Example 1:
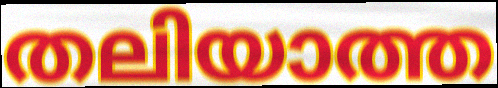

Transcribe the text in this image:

തലിയാത്ത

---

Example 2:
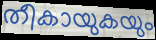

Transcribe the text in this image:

തീകായുകയും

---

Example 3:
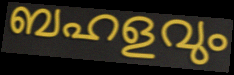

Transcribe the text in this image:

ബഹളവും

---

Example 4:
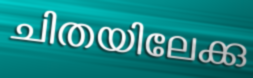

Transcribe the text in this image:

ചിതയിലേക്കു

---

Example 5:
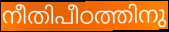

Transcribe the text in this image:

നീതിപീഠത്തിനു